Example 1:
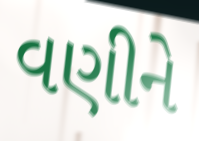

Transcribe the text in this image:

વણીને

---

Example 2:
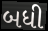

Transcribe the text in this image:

બધી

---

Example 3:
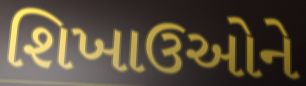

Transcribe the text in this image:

શિખાઉઓને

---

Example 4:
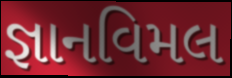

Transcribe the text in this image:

જ્ઞાનવિમલ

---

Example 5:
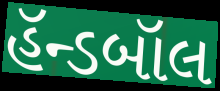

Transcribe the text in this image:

હૅન્ડબૉલ